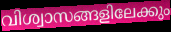
വിശ്വാസങ്ങളിലേക്കും